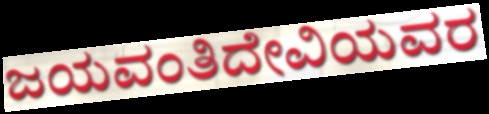
ಜಯವಂತಿದೇವಿಯವರ